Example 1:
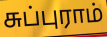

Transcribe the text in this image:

சுப்புராம்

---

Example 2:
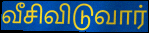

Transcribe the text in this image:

வீசிவிடுவார்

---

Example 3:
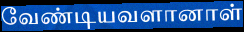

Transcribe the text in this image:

வேண்டியவளானாள்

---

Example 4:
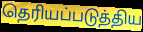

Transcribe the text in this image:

தெரியப்படுத்திய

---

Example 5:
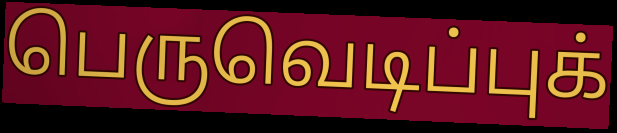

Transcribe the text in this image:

பெருவெடிப்புக்